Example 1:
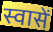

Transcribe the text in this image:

स्वासें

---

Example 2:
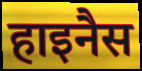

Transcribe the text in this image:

हाइनैस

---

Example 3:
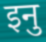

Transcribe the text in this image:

इनु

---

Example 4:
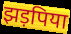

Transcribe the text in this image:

झड़पिया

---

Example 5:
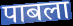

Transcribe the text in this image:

पाबला